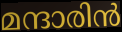
മന്ദാരിൻ